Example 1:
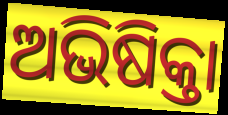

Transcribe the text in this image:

ଅଭିଷିକ୍ତା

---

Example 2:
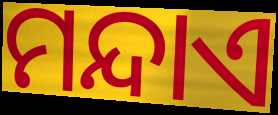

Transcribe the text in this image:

ମନ୍ଦାଏ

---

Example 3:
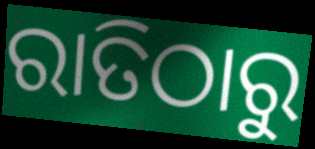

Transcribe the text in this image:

ରାତିଠାରୁ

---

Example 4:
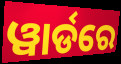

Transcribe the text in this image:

ୱାର୍ଡରେ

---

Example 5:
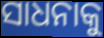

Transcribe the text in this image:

ସାଧନାକୁ